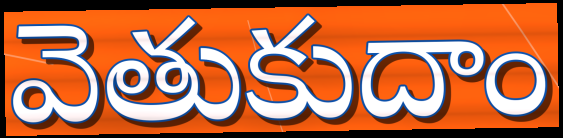
వెతుకుదాం